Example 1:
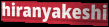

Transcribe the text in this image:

hiranyakeshi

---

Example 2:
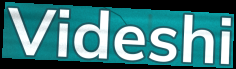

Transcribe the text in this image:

Videshi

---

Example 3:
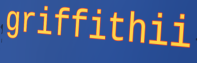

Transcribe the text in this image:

griffithii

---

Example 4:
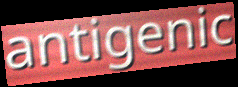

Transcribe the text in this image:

antigenic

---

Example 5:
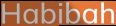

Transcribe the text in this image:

Habibah